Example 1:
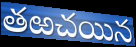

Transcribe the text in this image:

తఱచయిన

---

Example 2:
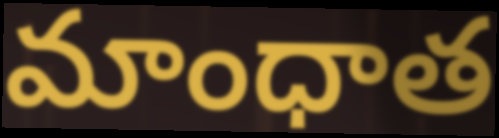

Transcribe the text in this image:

మాంధాత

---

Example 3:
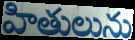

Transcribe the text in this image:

హితులును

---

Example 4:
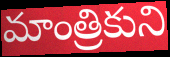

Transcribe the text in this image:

మాంత్రికుని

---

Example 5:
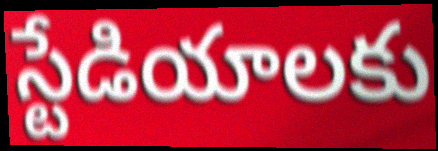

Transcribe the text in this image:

స్టేడియాలకు